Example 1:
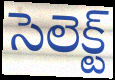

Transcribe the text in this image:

సెలెక్ట్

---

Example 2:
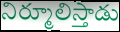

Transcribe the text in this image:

నిర్మూలిస్తాడు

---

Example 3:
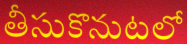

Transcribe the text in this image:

తీసుకొనుటలో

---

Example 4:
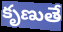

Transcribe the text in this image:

కృణుతే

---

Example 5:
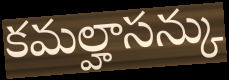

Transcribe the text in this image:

కమల్హాసన్కు